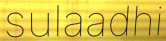
sulaadhi